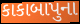
કાકાબાપુના